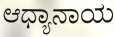
ಆಧ್ಯಾನಾಯ